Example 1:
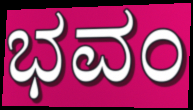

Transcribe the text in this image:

ಭವಂ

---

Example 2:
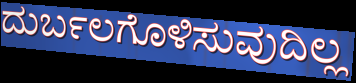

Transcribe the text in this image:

ದುರ್ಬಲಗೊಳಿಸುವುದಿಲ್ಲ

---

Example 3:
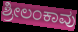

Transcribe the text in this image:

ಶ್ರೀಲಂಕಾವು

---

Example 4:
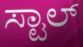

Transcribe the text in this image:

ಸ್ಟಾಲ್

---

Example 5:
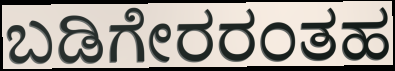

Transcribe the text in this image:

ಬಡಿಗೇರರಂತಹ